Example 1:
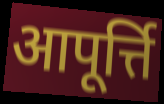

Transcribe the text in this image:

आपूर्त्ति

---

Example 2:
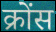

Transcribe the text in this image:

क्रोंस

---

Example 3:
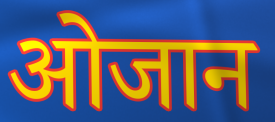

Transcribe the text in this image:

ओजान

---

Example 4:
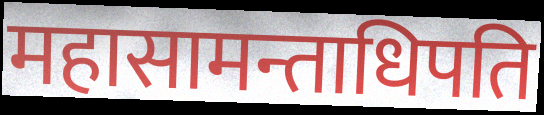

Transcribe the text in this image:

महासामन्ताधिपति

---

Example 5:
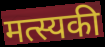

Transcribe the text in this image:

मत्स्यकी